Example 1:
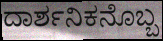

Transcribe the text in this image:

ದಾರ್ಶನಿಕನೊಬ್ಬ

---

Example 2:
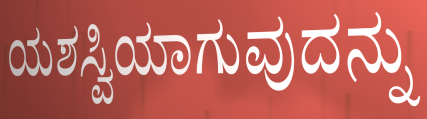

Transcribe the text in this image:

ಯಶಸ್ವಿಯಾಗುವುದನ್ನು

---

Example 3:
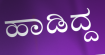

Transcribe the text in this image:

ಹಾಡಿದ್ದ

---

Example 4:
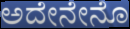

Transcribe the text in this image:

ಅದೇನೇನೊ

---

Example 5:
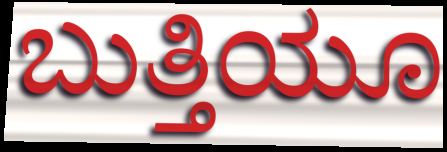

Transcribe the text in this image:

ಬುತ್ತಿಯೂ